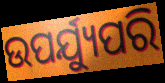
ଉପର୍ଯ୍ୟୁପରି